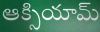
ఆక్సియామ్